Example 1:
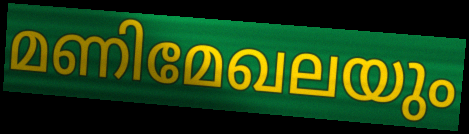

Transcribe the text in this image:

മണിമേഖലയും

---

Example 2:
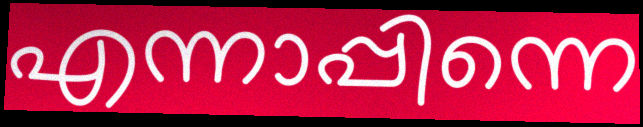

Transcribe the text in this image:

എന്നാപ്പിന്നെ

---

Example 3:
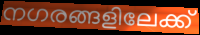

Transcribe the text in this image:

നഗരങ്ങളിലേക്ക്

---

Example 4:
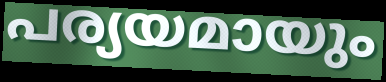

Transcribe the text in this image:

പര്യയമായും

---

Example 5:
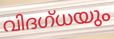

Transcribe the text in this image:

വിദഗ്ധയും